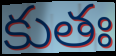
కుతః